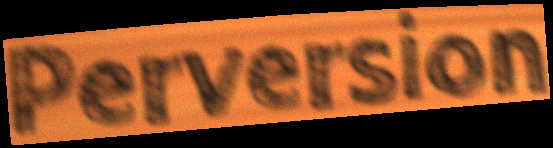
Perversion